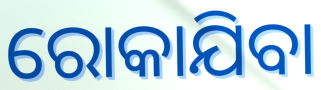
ରୋକାଯିବା